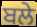
ਬਲੇ